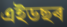
এইডছৰ